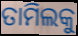
ତାମିଲକୁ